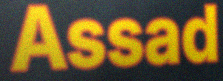
Assad